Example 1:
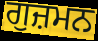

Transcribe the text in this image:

ਗੁਜ਼ਮਨ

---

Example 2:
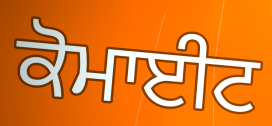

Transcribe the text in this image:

ਕੋਮਾਈਟ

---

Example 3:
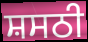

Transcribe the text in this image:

ਸ਼ਸਠੀ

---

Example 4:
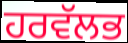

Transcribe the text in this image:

ਹਰਵੱਲਭ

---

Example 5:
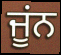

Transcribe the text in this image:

ਜੂਂਨ